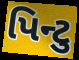
પિન્ટુ